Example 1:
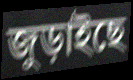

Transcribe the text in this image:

জুড়াইছে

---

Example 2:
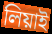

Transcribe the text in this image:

লিয়াই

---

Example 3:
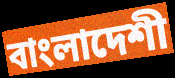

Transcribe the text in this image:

বাংলাদেশী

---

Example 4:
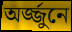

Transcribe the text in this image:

অর্জ্জুনে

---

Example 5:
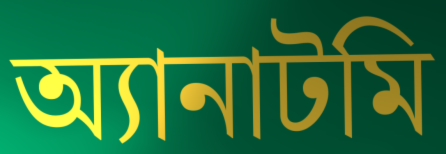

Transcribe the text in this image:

অ্যানাটমি